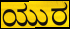
ಯುರ